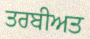
ਤਰਬੀਅਤ